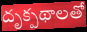
దృక్పథాలతో